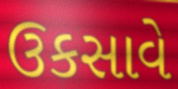
ઉકસાવે